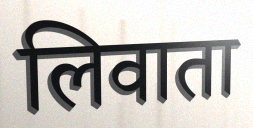
लिवाता